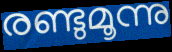
രണ്ടുമൂന്നു